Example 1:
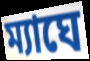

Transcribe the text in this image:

ম্যাঘে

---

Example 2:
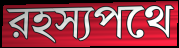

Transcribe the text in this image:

রহস্যপথে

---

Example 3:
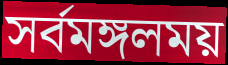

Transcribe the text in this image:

সর্বমঙ্গলময়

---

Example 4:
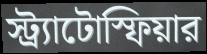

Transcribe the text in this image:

স্ট্র্যাটোস্ফিয়ার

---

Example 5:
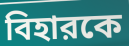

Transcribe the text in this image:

বিহারকে